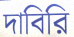
দাবিরি